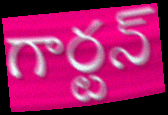
గార్టన్